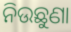
ନିଉଛୁଣା